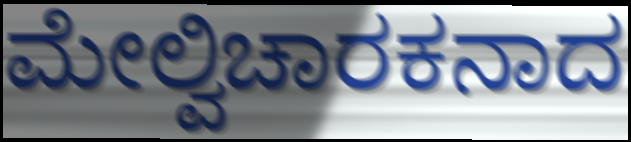
ಮೇಲ್ವಿಚಾರಕನಾದ